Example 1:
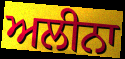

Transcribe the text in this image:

ਅਲੀਨਾ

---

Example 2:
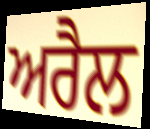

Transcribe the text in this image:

ਅਰੈਲ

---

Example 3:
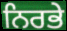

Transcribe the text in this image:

ਨਿਰਭੇ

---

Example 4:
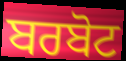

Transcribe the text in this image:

ਬਰਬੋਟ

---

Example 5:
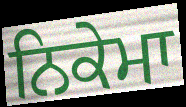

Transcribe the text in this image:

ਨਿਕੇਮਾ